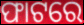
ଫାଟରେ